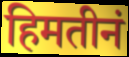
हिमतीनं